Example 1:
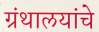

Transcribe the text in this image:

ग्रंथालयांचे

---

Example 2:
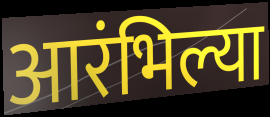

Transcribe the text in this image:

आरंभिल्या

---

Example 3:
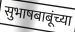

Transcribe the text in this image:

सुभाषबाबूंच्या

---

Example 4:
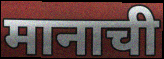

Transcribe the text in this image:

मानाची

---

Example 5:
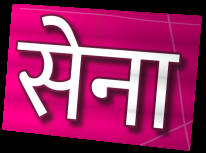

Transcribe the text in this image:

सेना